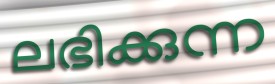
ലഭിക്കുന്ന